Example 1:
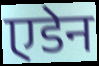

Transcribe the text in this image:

एडेन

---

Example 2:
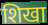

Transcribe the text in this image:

शिखा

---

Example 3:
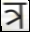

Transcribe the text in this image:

त्र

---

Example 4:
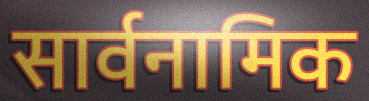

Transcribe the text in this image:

सार्वनामिक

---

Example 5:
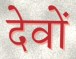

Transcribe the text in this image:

देवों